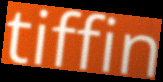
tiffin